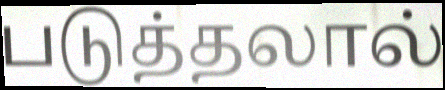
படுத்தலால்